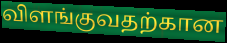
விளங்குவதற்கான